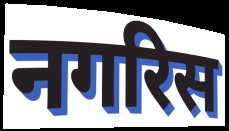
नगरिस